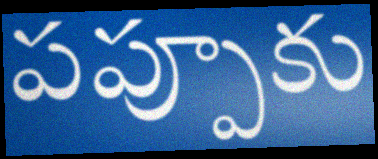
పప్పూకు